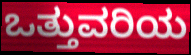
ಒತ್ತುವರಿಯ